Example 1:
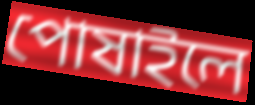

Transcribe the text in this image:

পোষাইলে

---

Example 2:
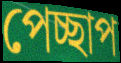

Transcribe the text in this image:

পেচ্ছাপ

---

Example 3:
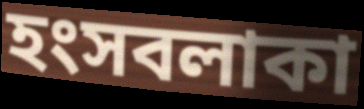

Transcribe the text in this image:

হংসবলাকা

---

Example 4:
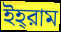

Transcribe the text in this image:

ইহ্‌রাম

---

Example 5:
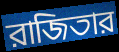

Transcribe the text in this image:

রাজিতার